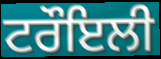
ਟਰੌਇਲੀ